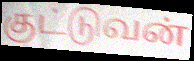
குட்டுவன்